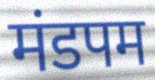
मंडपम